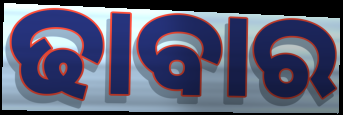
ଢାବାର